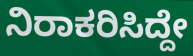
ನಿರಾಕರಿಸಿದ್ದೇ